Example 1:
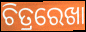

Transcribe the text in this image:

ଚିତ୍ରରେଖା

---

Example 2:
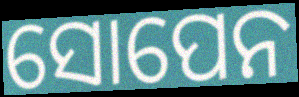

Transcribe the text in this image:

ସୋପେନ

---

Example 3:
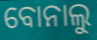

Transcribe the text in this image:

ବୋନାଲୁ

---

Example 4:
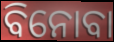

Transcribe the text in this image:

ବିନୋବା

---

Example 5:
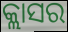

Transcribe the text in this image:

କ୍ଲାସର